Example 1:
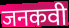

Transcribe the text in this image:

जनकवी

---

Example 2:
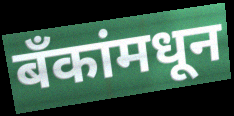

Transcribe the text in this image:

बॅंकांमधून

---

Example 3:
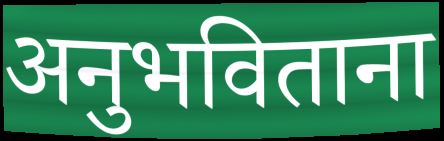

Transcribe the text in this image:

अनुभविताना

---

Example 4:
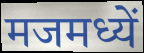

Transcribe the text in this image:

मजमध्यें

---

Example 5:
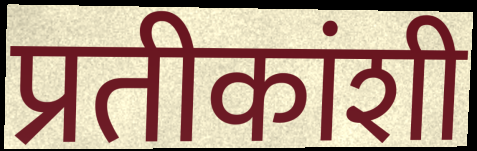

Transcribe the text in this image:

प्रतीकांशी